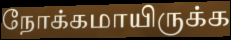
நோக்கமாயிருக்க